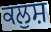
ਕਲੁਸ਼